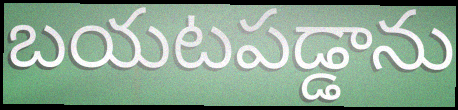
బయటపడ్డాను